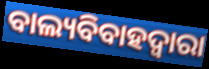
ବାଲ୍ୟବିବାହଦ୍ୱାରା